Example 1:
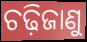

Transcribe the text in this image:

ଚଢ଼ିଜାଣୁ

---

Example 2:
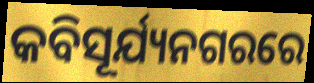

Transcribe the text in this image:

କବିସୂର୍ଯ୍ୟନଗରରେ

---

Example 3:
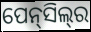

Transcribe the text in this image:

ପେନ୍‌ସିଲ୍‌ର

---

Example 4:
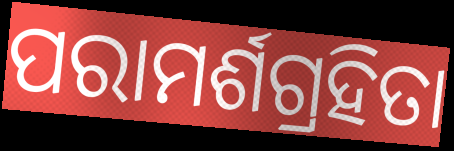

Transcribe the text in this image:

ପରାମର୍ଶଗ୍ରହିତା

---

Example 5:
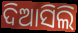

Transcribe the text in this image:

ଦିଆସିଲି